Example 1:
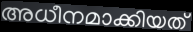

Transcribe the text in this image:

അധീനമാക്കിയത്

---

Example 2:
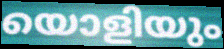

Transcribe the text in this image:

യൊളിയും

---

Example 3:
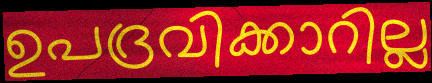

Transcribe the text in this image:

ഉപദ്രവിക്കാറില്ല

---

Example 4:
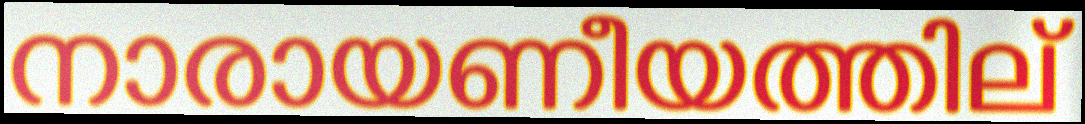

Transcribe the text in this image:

നാരായണീയത്തില്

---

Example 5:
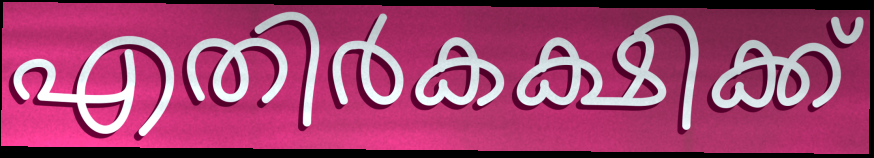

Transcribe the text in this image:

എതിർകക്ഷിക്ക്